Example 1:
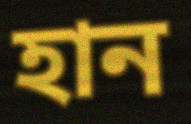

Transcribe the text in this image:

হান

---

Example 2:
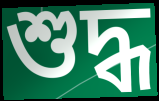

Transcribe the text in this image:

শুদ্ধ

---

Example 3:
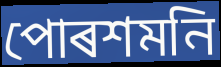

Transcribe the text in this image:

পোৰশমনি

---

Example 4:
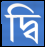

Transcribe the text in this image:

দ্বি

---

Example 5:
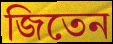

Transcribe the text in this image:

জিতেন